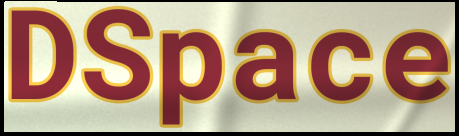
DSpace